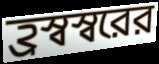
হ্রস্বস্বরের